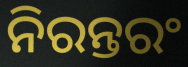
ନିରନ୍ତରଂ